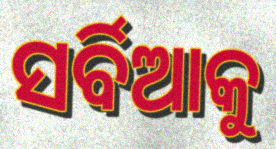
ସର୍ବିଆକୁ